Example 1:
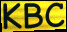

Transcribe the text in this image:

KBC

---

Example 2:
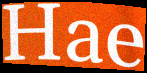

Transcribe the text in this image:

Hae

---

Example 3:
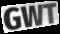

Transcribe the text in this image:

GWT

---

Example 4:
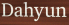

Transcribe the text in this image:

Dahyun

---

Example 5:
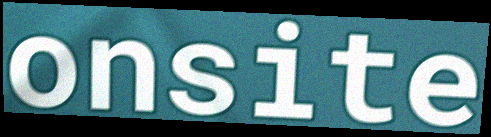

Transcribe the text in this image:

onsite